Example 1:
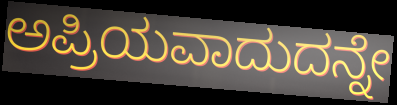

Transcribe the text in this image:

ಅಪ್ರಿಯವಾದುದನ್ನೇ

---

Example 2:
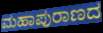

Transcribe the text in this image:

ಮಹಾಪುರಾಣದ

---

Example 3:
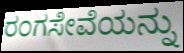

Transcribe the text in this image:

ರಂಗಸೇವೆಯನ್ನು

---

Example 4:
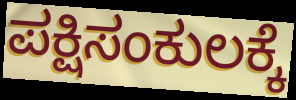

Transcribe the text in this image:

ಪಕ್ಷಿಸಂಕುಲಕ್ಕೆ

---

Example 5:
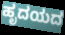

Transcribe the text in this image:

ಹೃದಯದ